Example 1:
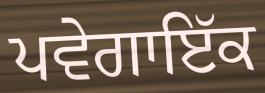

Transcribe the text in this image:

ਪਵੇਗਾਇੱਕ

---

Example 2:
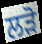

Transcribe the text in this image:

ਲੜੋ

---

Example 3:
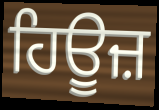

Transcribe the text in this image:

ਹਿਊਜ਼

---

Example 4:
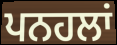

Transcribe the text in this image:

ਪਨਹਲਾਂ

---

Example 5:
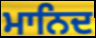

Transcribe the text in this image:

ਮਾਨਿਦ